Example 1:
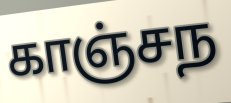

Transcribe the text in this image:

காஞ்சந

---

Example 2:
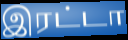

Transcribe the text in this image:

இரட்டா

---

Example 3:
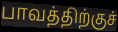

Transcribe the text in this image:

பாவத்திற்குச்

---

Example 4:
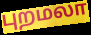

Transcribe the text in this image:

புறமலா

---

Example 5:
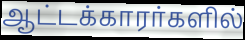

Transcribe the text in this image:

ஆட்டக்காரர்களில்